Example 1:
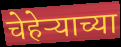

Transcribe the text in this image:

चेहेऱ्याच्या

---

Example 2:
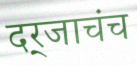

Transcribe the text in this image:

दर्जाचंच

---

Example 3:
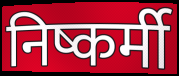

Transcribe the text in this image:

निष्कर्मी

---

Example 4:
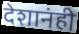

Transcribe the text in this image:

देशानंही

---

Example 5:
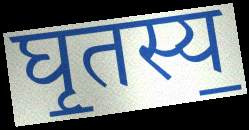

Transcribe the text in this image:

घृ॒तस्य॒